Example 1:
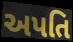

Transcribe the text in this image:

અપતિ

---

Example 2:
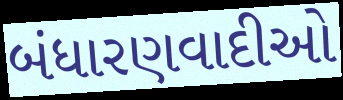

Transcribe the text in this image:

બંધારણવાદીઓ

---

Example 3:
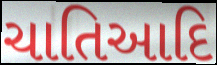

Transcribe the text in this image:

ચાતિઆદિ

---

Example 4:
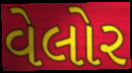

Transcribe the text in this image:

વેલોર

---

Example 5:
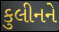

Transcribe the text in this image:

કુલીનને